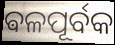
ଵଳପୂର୍ବକ